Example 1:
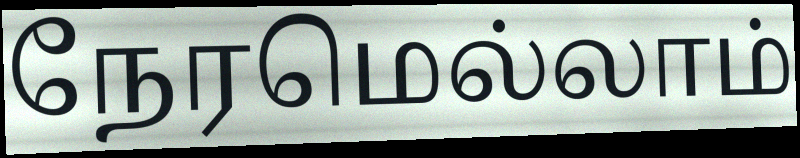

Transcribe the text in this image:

நேரமெல்லாம்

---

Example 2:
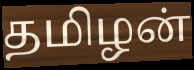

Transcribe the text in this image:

தமிழன்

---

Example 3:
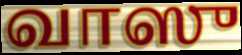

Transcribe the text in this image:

வாஸு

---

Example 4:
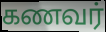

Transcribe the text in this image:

கணவர்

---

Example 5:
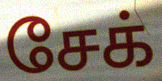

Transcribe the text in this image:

சேக்